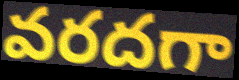
వరదగా